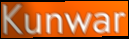
Kunwar